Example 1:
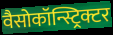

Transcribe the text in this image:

वैसोकॉन्स्ट्रिक्टर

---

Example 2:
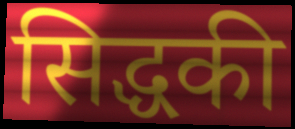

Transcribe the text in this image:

सिद्धकी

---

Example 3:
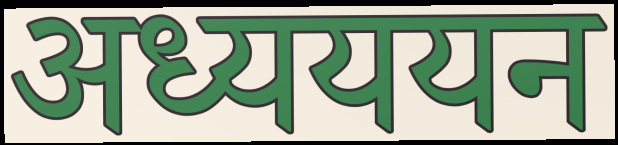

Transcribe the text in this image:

अध्यययन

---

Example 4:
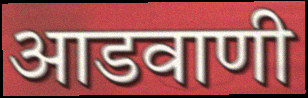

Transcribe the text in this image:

आडवाणी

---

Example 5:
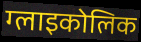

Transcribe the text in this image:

ग्लाइकोलिक